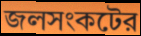
জলসংকটের